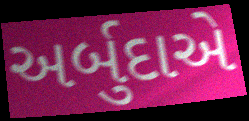
અર્બુદાએ